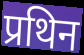
प्रथिन